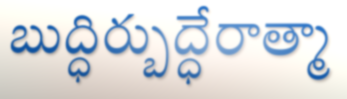
బుద్ధిర్బుద్ధేరాత్మా